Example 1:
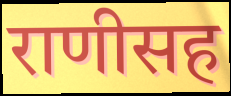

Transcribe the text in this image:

राणीसह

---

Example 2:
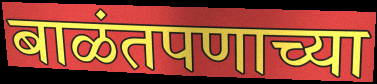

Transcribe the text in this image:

बाळंतपणाच्या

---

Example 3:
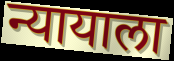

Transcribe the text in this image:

न्यायाला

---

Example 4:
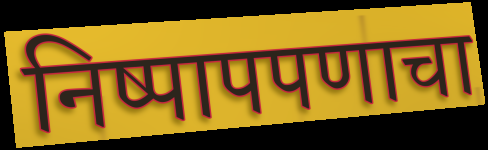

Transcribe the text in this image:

निष्पापपणाचा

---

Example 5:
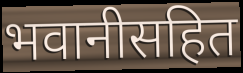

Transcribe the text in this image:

भवानीसहित